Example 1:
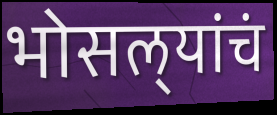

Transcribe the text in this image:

भोसल्यांचं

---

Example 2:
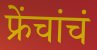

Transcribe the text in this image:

फ्रेंचांचं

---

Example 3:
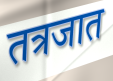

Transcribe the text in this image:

तत्रजात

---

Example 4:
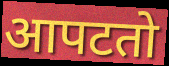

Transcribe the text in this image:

आपटतो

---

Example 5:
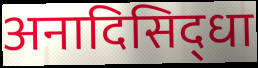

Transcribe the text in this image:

अनादिसिद्धा